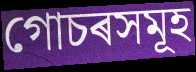
গোচৰসমূহ